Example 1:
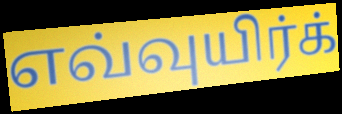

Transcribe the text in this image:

எவ்வுயிர்க்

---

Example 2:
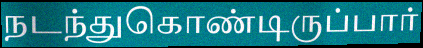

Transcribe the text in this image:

நடந்துகொண்டிருப்பார்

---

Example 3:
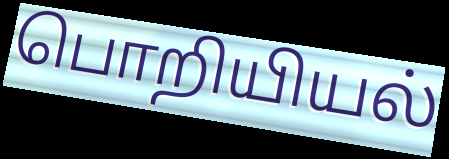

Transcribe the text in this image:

பொறியியல்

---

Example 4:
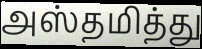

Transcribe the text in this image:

அஸ்தமித்து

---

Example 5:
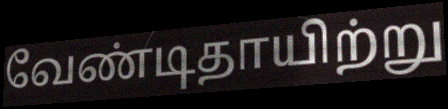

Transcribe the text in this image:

வேண்டிதாயிற்று